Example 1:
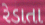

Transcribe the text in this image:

રેડાતા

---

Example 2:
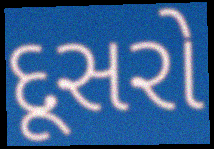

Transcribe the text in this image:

દૂસરો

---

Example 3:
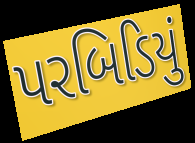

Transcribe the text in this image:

પરબિડિયું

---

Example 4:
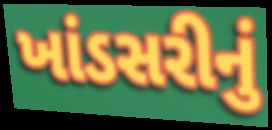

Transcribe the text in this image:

ખાંડસરીનું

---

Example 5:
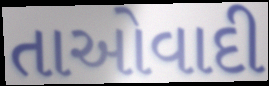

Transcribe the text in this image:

તાઓવાદી